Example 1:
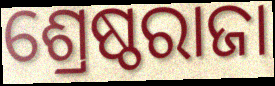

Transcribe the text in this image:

ଶ୍ରେଷ୍ଠରାଜା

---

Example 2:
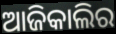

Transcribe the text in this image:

ଆଜିକାଲିର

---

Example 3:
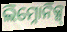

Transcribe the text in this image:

ଲିମ୍ନୋନିକ୍ସ୍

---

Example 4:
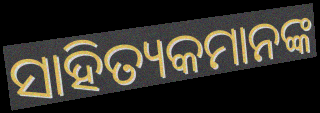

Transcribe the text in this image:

ସାହିତ୍ୟକମାନଙ୍କ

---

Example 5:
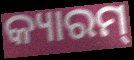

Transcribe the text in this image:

କ୍ୟାରମ୍